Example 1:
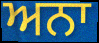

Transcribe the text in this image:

ਅਨਾ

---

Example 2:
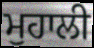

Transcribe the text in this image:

ਮੁਹਾਲੀ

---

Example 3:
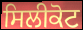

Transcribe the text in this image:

ਸਿਲੀਕੋਟ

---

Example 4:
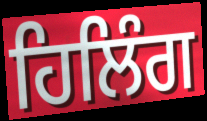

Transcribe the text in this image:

ਹਿਲਿੰਗ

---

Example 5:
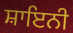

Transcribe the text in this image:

ਸ਼ਾਇਨੀ